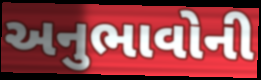
અનુભાવોની